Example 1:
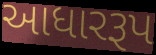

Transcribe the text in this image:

આધારરૂપ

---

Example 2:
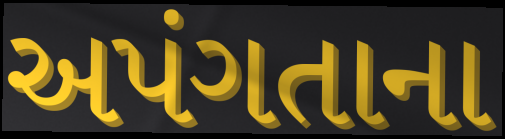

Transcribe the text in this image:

અપંગતાના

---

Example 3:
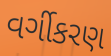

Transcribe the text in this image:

વર્ગીકરણ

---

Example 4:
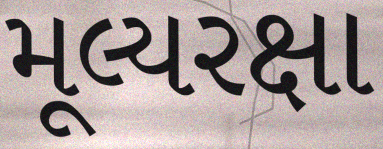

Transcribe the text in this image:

મૂલ્યરક્ષા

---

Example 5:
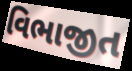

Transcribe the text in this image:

વિભાજીત